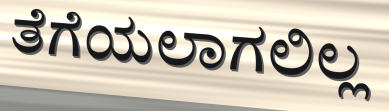
ತೆಗೆಯಲಾಗಲಿಲ್ಲ